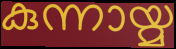
കുന്നായ്മ